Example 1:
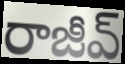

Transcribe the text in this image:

రాజీవ్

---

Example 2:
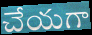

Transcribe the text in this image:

చేయగా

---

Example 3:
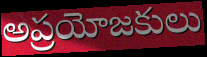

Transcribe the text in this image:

అప్రయోజకులు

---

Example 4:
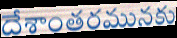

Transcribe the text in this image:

దేశాంతరమునకు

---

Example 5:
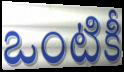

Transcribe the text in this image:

ఒంటికీ